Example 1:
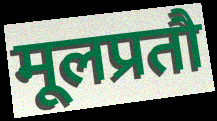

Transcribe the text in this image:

मूलप्रतौ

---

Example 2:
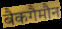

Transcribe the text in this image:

बैकगैमौन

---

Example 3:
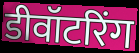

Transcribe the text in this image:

डीवॉटरिंग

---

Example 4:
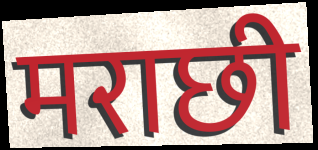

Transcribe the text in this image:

मराछी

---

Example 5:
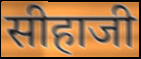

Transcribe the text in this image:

सीहाजी